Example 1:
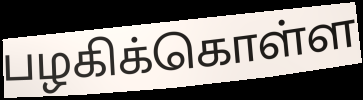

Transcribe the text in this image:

பழகிக்கொள்ள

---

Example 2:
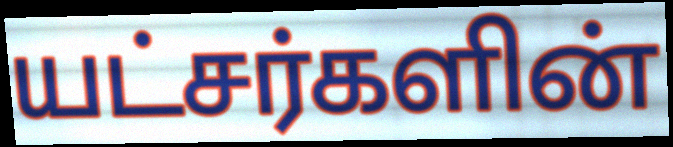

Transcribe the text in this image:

யட்சர்களின்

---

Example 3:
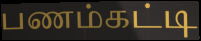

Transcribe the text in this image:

பணம்கட்டி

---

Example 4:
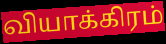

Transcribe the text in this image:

வியாக்கிரம்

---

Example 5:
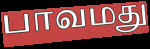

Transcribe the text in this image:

பாவமது